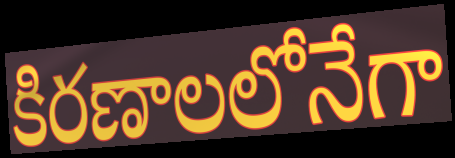
కిరణాలలోనేగా